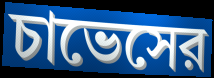
চাভেসের